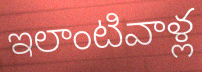
ఇలాంటివాళ్ల